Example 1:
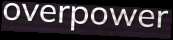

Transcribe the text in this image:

overpower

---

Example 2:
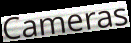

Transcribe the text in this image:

Cameras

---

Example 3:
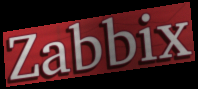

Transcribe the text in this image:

Zabbix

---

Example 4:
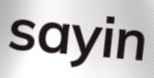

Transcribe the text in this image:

sayin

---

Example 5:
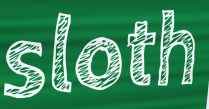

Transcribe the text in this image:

sloth